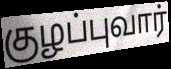
குழப்புவார்